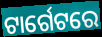
ଟାର୍ଗେଟରେ